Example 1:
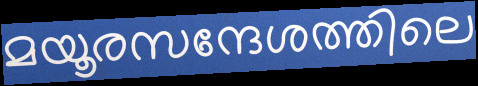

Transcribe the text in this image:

മയൂരസന്ദേശത്തിലെ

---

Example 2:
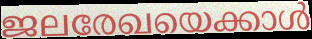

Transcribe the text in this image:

ജലരേഖയെക്കാൾ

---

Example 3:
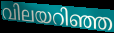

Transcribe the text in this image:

വിലയറിഞ്ഞ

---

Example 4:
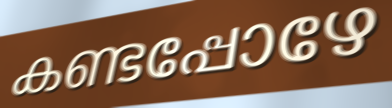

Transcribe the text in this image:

കണ്ടപ്പോഴേ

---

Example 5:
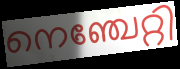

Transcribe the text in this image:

നെഞ്ചേറ്റി